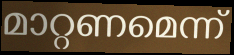
മാറ്റണമെന്ന്